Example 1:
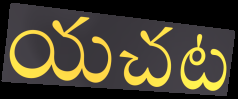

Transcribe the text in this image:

యచట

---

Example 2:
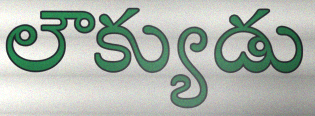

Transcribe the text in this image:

లౌక్యుడు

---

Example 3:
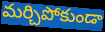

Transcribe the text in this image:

మర్చిపోకుండా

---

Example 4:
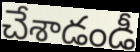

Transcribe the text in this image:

చేశాడండీ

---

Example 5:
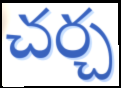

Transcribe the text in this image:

చర్చ